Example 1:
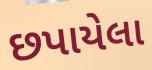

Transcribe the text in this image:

છપાયેલા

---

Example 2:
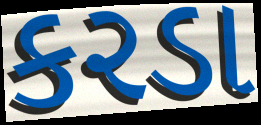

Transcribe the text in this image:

કરડા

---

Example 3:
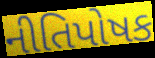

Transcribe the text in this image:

નીતિપોષક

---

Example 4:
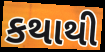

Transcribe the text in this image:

કથાથી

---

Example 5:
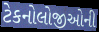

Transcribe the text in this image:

ટેકનોલોજીઓની